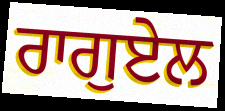
ਰਾਗੁਏਲ